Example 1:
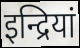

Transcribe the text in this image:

इन्द्रियां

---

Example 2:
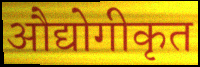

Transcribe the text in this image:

औद्योगीकृत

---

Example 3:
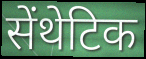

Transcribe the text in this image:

सेंथेटिक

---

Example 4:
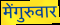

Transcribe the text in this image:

मेंगुरुवार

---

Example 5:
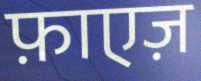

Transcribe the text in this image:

फ़ाएज़